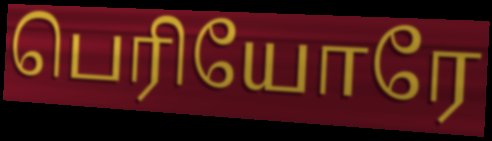
பெரியோரே